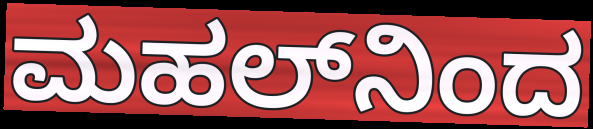
ಮಹಲ್‌ನಿಂದ